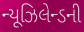
ન્યૂઝિલેન્ડની